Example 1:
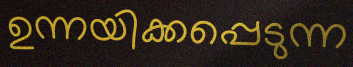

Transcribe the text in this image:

ഉന്നയിക്കപ്പെടുന്ന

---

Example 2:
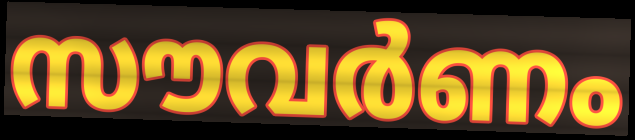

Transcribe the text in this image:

സൗവർണം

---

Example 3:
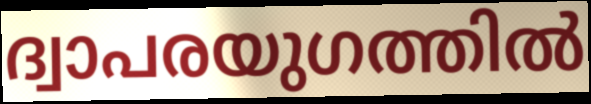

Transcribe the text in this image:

ദ്വാപരയുഗത്തിൽ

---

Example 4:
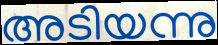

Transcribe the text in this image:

അടിയന്നു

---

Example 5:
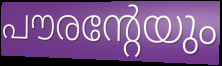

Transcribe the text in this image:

പൗരന്റേയും